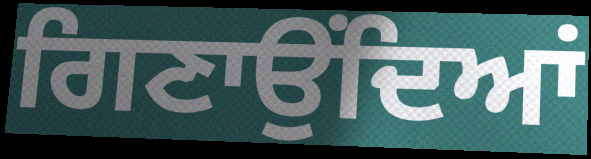
ਗਿਣਾਉਂਦਿਆਂ